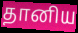
தானிய